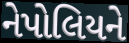
નેપોલિયને